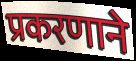
प्रकरणाने